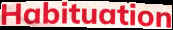
Habituation